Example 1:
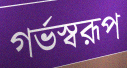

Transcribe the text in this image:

গর্ভস্বরূপ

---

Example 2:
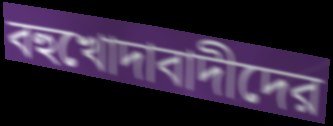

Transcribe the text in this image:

বহুখোদাবাদীদের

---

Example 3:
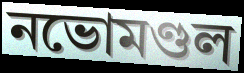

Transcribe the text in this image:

নভোমণ্ডল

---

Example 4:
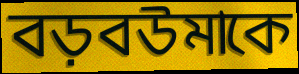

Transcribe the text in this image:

বড়বউমাকে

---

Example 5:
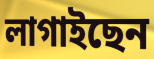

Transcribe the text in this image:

লাগাইছেন